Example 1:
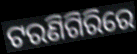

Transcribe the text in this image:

ଟରଣିଗିରିରେ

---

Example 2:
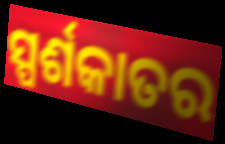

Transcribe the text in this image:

ସ୍ପର୍ଶକାତର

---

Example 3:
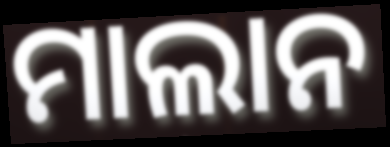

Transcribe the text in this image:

ମାଲାନ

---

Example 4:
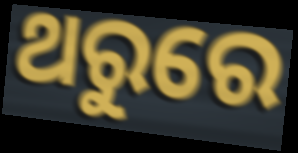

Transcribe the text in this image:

ଥରୁରେ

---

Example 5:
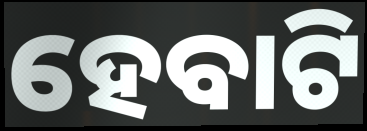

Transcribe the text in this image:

ହେବାଟି